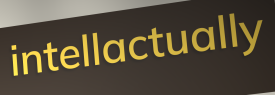
intellactually